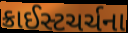
ક્રાઈસ્ટચર્ચના